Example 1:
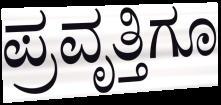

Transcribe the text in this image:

ಪ್ರವೃತ್ತಿಗೂ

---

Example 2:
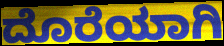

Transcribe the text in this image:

ದೊರೆಯಾಗಿ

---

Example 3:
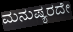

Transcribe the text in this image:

ಮನುಷ್ಯರದೇ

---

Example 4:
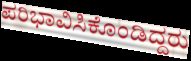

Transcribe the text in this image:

ಪರಿಭಾವಿಸಿಕೊಂಡಿದ್ದರು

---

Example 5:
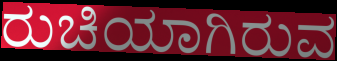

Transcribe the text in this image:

ರುಚಿಯಾಗಿರುವ